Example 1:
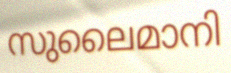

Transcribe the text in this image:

സുലൈമാനി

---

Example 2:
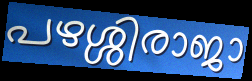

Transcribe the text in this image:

പഴശ്ശിരാജാ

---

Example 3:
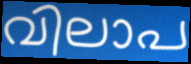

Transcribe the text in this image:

വിലാപ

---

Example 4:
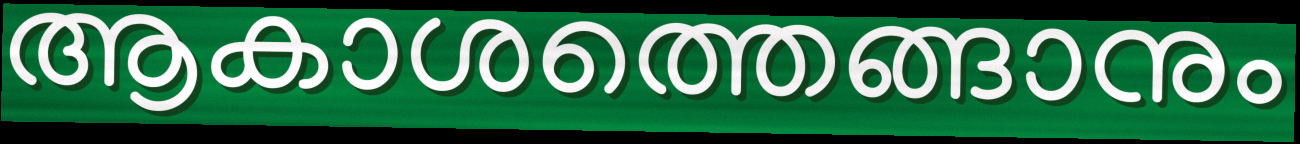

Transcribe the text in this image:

ആകാശത്തെങ്ങാനും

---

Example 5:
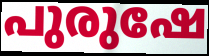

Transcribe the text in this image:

പുരുഷേ